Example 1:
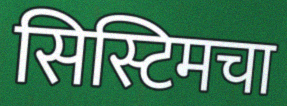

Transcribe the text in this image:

सिस्टिमचा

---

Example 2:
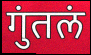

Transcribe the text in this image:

गुंतलं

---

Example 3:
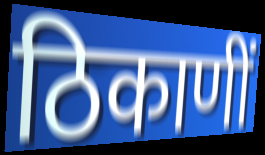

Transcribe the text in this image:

ठिकाणीं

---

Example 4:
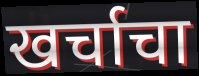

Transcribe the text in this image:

खर्चाचा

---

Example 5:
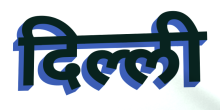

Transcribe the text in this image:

दिल्ली